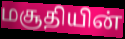
மசூதியின்